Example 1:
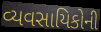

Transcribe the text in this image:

વ્યવસાયિકોની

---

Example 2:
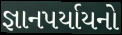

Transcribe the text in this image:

જ્ઞાનપર્યાયનો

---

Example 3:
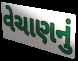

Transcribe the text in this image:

વેચાણનું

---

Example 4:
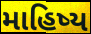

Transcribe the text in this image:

માહિષ્ય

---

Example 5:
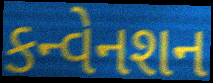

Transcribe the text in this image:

કન્વેનશન